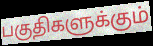
பகுதிகளுக்கும்